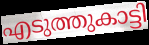
എടുത്തുകാട്ടി